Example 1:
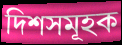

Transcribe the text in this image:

দিশসমূহক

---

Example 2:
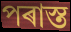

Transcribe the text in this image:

পৰাস্ত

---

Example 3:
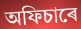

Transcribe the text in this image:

অফিচাৰে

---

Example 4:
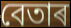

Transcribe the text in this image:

বেতাৰ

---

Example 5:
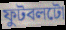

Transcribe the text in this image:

ফুটবলটো